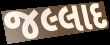
જલ્લાદ